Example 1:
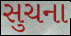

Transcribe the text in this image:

સુચના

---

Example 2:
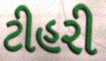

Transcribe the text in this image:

ટીહરી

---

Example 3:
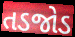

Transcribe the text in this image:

તડજોડ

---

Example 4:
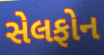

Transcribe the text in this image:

સેલફોન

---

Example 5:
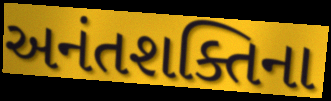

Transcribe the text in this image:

અનંતશક્તિના